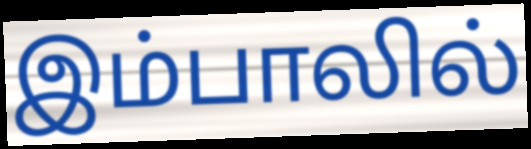
இம்பாலில்